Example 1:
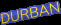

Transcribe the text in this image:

DURBAN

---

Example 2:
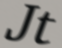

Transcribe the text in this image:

Jt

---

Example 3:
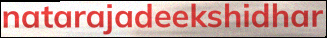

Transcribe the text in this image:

natarajadeekshidhar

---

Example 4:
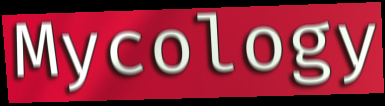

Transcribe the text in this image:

Mycology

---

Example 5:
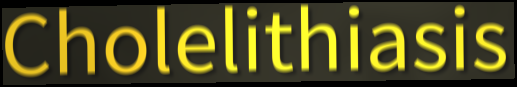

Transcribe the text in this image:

Cholelithiasis